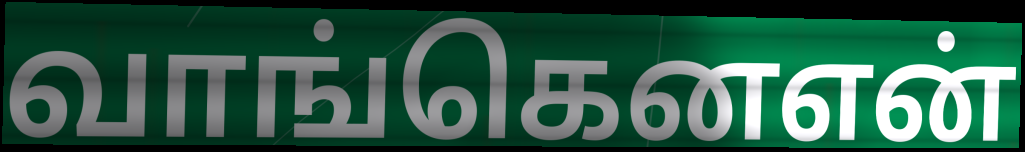
வாங்கெனஎன்